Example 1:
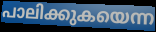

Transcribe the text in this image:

പാലിക്കുകയെന്ന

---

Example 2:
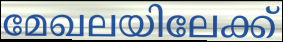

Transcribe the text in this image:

മേഖലയിലേക്ക്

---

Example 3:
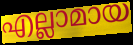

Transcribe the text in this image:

എല്ലാമായ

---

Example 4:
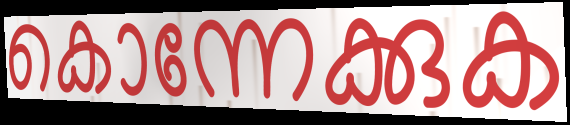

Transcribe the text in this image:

കൊന്നേക്കുക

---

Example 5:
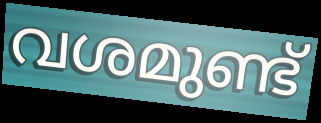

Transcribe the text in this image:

വശമുണ്ട്